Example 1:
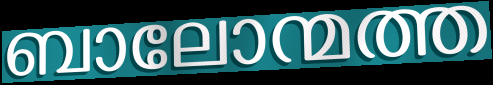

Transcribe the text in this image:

ബാലോന്മത്ത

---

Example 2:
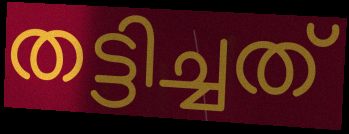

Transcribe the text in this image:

തട്ടിച്ചത്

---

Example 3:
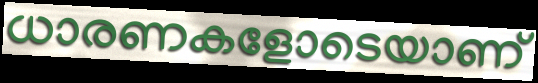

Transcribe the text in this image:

ധാരണകളോടെയാണ്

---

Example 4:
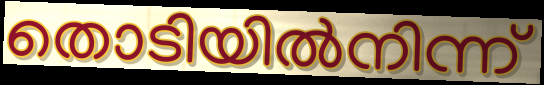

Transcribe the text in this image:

തൊടിയിൽനിന്ന്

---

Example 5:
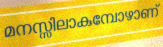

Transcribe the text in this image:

മനസ്സിലാകുമ്പോഴാണ്